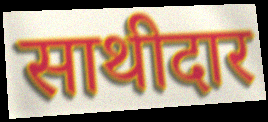
साथीदार